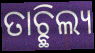
ତାଚ୍ଛିଲ୍ୟ